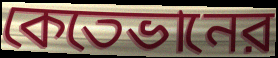
কেতেভানের